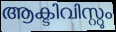
ആക്ടിവിസ്റ്റും